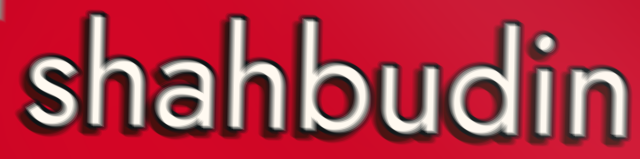
shahbudin